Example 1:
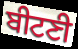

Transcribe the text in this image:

ਬੀਟਣੀ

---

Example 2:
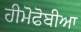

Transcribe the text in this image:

ਹੀਮੋਫੋਬੀਆ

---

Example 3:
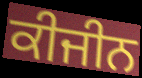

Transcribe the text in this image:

ਕੀਜੀਨ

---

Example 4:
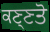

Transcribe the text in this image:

ਕਣ੍ਣਤੋ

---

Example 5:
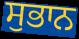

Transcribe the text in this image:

ਸੁਭਾਨ